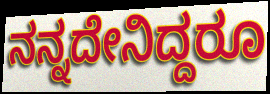
ನನ್ನದೇನಿದ್ದರೂ